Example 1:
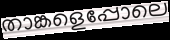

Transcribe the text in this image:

താങ്കളെപ്പോലെ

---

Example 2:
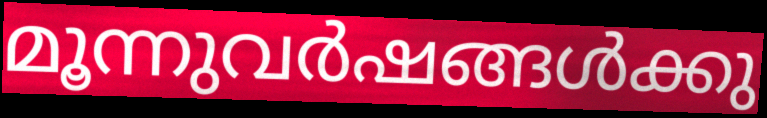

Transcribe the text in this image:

മൂന്നുവർഷങ്ങൾക്കു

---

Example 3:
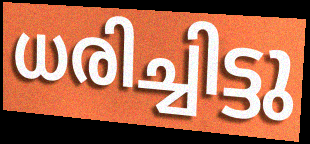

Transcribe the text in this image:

ധരിച്ചിട്ടു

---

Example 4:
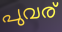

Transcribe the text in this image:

പുവര്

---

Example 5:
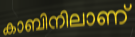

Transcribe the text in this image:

കാബിനിലാണ്